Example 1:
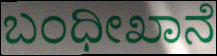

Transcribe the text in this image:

ಬಂಧೀಖಾನೆ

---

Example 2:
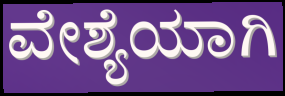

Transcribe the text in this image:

ವೇಶ್ಯೆಯಾಗಿ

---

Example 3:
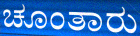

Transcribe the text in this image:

ಚೂಂತಾರು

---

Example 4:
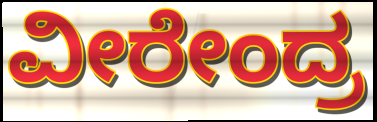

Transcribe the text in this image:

ವೀರೇಂದ್ರ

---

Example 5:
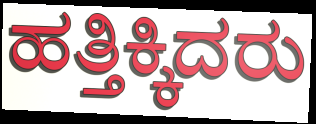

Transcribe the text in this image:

ಹತ್ತಿಕ್ಕಿದರು